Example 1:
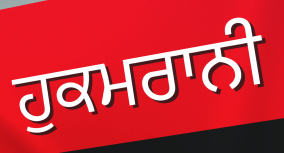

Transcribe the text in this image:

ਹੁਕਮਰਾਨੀ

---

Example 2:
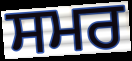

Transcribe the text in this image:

ਸਮਰ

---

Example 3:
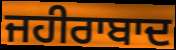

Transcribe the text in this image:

ਜਹੀਰਾਬਾਦ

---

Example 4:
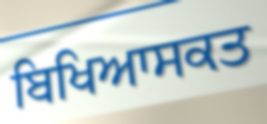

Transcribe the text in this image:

ਬਿਖਿਆਸਕਤ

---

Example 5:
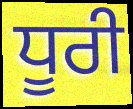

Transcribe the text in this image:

ਧੂਰੀ